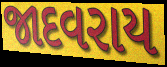
જાદવરાય